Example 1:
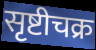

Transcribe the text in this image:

सृष्टीचक्र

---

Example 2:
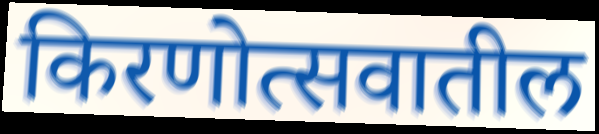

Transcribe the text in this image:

किरणोत्सवातील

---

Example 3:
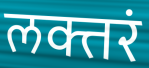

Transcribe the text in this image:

लक्तरं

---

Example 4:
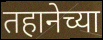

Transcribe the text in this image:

तहानेच्या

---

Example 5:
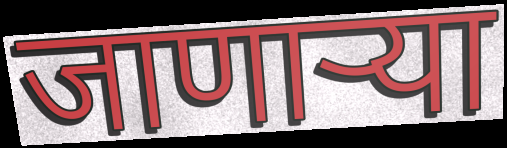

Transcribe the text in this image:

जाणार्‍या